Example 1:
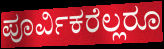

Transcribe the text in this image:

ಪೂರ್ವಿಕರೆಲ್ಲರೂ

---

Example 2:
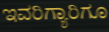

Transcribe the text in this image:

ಇವರಿಗ್ಯಾರಿಗೂ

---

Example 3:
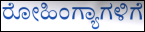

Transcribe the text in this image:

ರೋಹಿಂಗ್ಯಾಗಳಿಗೆ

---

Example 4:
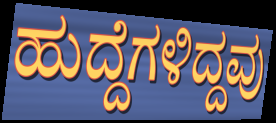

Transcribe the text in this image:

ಹುದ್ದೆಗಳಿದ್ದವು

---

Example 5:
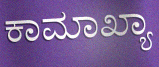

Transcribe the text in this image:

ಕಾಮಾಖ್ಯಾ